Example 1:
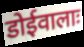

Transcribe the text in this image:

डोईवालाः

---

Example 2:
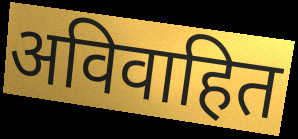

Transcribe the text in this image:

अविवाहित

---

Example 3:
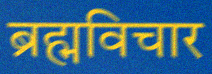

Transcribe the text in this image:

ब्रह्मविचार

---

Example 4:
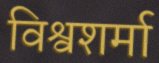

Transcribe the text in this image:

विश्वशर्मा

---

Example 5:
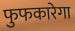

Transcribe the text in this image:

फुफकारेगा